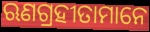
ଋଣଗ୍ରହୀତାମାନେ